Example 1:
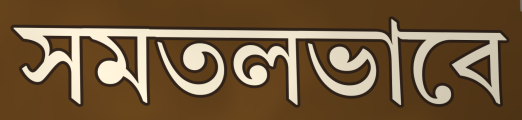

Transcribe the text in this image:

সমতলভাবে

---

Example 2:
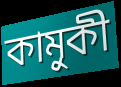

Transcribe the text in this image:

কামুকী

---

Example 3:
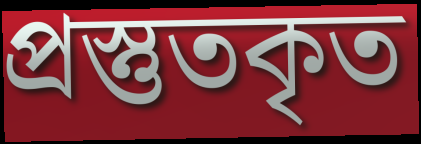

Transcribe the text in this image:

প্রস্তুতকৃত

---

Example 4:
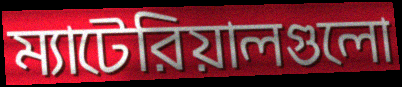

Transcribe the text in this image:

ম্যাটেরিয়ালগুলো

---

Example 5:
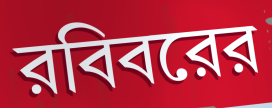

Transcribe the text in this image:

রবিবরের